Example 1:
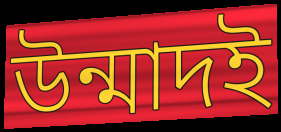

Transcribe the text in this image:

উন্মাদই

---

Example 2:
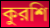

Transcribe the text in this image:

কুরশি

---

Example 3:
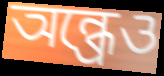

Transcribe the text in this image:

অন্ধ্রেও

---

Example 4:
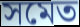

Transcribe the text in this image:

সমেত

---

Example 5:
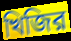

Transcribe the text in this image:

খিজির